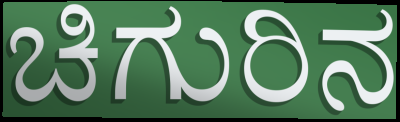
ಚಿಗುರಿನ